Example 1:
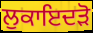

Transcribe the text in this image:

ਲੁਕਾਇਦੜੋ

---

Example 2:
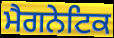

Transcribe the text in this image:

ਮੈਗਨੇਟਿਕ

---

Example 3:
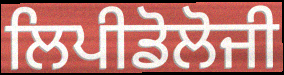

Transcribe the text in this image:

ਲਿਪੀਡੋਲੋਜੀ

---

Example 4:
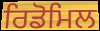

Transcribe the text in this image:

ਰਿਡੋਮਿਲ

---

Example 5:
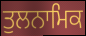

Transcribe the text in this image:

ਤੁਲਨਾਮਿਕ